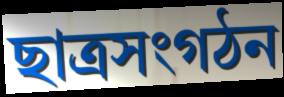
ছাত্রসংগঠন